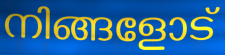
നിങ്ങളോട്